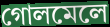
গোলমেলে